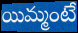
యిమ్మంటే